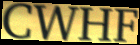
CWHF